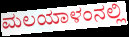
ಮಲಯಾಳಂನಲ್ಲಿ